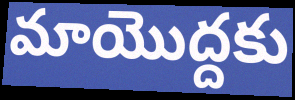
మాయొద్దకు